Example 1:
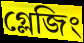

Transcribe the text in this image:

গ্লেজিং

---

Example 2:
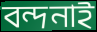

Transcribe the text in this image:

বন্দনাই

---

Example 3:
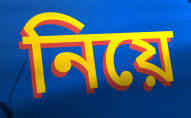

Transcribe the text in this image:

নিয়ে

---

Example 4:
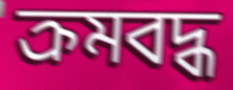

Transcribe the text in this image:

ক্ৰমবদ্ধ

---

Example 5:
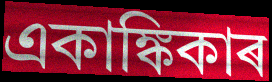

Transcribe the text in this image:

একাঙ্কিকাৰ